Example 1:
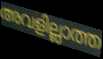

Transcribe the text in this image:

അവളില്ലാത്ത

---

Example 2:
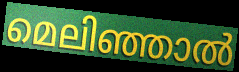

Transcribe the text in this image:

മെലിഞ്ഞാൽ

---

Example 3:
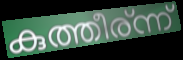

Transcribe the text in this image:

കുത്തീര്ന്ന്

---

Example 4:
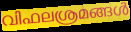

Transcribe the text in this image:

വിഫലശ്രമങ്ങൾ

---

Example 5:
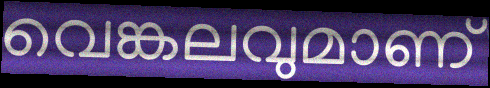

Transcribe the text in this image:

വെങ്കലവുമാണ്